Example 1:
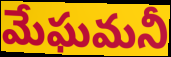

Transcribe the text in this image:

మేఘమనీ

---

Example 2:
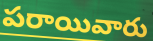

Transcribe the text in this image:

పరాయివారు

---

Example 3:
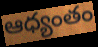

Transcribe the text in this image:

ఆధ్యంతం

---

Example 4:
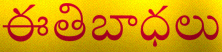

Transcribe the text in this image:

ఈతిబాధలు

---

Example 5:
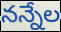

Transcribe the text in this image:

నన్నేల